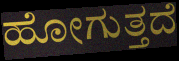
ಹೋಗುತ್ತದೆ